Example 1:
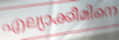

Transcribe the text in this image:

എല്യാക്കീമിനെ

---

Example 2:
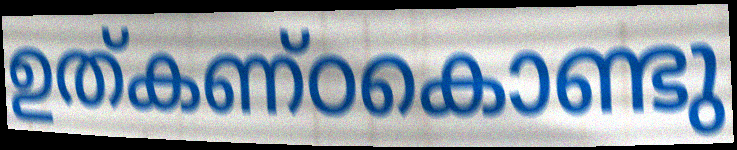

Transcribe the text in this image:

ഉത്കണ്ഠകൊണ്ടു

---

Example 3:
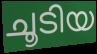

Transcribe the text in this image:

ചൂടിയ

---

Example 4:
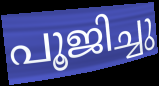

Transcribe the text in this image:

പൂജിച്ചു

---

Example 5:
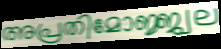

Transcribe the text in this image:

അപ്രതിമോജ്ജ്വല